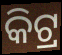
କିଟ୍ର